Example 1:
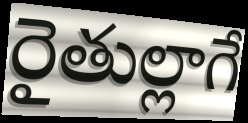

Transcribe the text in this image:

రైతుల్లాగే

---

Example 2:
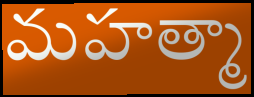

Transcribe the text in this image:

మహత్మా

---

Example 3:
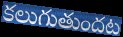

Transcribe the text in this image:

కలుగుతుందట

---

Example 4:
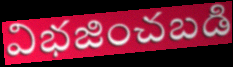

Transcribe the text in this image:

విభజించబడి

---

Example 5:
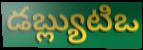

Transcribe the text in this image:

డబ్ల్యుటిఒ